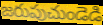
జరుపుచుండెడి